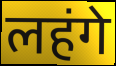
लहंगे